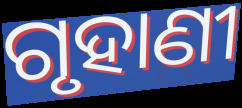
ଗୃହାଣୀ